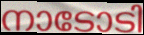
നാടോടി